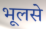
भूलसे